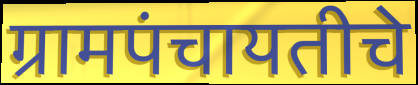
ग्रामपंचायतीचे